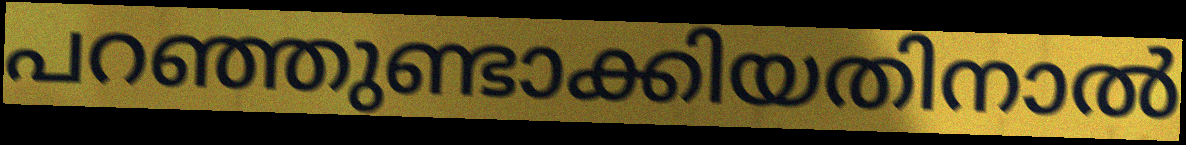
പറഞ്ഞുണ്ടാക്കിയതിനാൽ